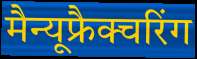
मैन्यूफ्रैक्चरिंग